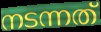
നടന്നത്